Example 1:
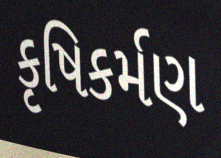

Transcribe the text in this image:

કૃષિકર્મણ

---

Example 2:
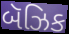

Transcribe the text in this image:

બૅઝિક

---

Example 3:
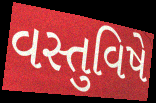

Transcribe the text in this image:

વસ્તુવિષે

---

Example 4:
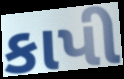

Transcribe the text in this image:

કાપી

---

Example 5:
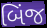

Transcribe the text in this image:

બિંજ